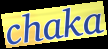
chaka